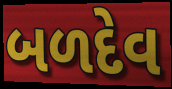
બળદેવ